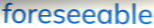
foreseeable